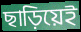
ছাড়িয়েই